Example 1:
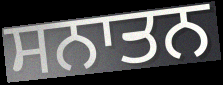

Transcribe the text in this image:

ਸਨਾਤਨ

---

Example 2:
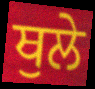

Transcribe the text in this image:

ਥੁਲੇ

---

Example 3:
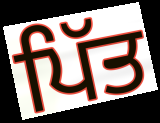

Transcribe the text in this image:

ਪਿੱਤ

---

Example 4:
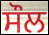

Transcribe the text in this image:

ਸੌਲ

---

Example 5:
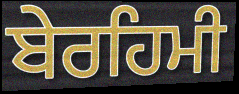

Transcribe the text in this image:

ਬੇਰਹਿਮੀ